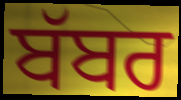
ਬੱਬਰ